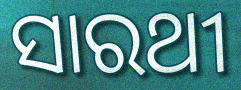
ସାରଥୀ